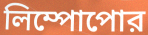
লিম্পোপোর